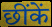
छींकें